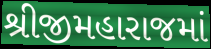
શ્રીજીમહારાજમાં